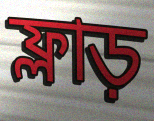
ফ্লাড়